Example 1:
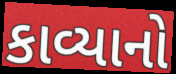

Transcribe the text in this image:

કાવ્યાનો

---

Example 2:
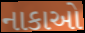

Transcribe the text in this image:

નાકાઓ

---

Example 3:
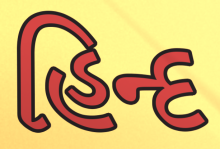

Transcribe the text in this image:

હિન્દ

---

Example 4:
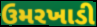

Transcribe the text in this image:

ઉમરખાડી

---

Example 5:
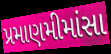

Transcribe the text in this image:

પ્રમાણમીમાંસા